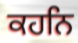
ਕਹਨਿ